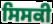
ਸਿਸਕੀ